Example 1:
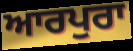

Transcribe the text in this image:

ਆਰਪੁਰਾ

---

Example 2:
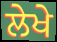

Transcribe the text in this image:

ਲੇਖੇ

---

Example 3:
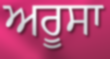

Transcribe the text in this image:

ਅਰੂਸਾ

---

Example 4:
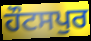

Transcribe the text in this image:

ਹੌਟਸਪੁਰ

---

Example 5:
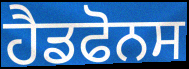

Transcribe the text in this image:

ਹੈਡਫੋਨਸ